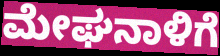
ಮೇಘನಾಳಿಗೆ